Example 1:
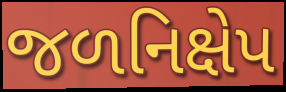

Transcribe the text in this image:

જળનિક્ષેપ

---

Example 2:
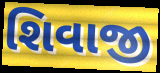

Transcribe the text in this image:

શિવાજી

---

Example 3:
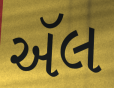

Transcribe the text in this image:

ઍલ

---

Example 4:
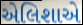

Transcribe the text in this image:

એલિશાએ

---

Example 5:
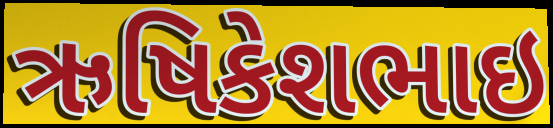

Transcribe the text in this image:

ઋષિકેશભાઇ